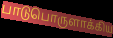
பாடுபொருளாக்கிய